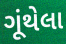
ગૂંથેલા